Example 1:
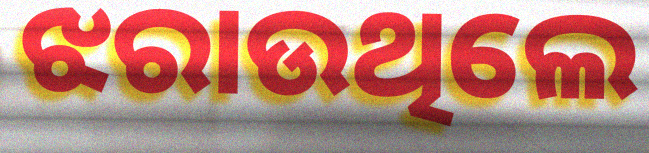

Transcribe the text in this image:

ଝରାଉଥିଲେ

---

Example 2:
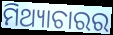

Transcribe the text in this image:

ମିଥ୍ୟାଚାରର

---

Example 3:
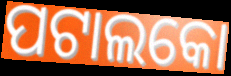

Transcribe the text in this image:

ପଟାଲକୋ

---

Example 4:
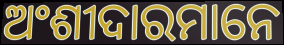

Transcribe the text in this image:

ଅଂଶୀଦାରମାନେ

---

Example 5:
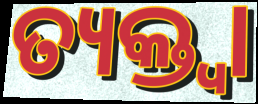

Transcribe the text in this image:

ତ୍ୟକ୍ତ୍ୱା